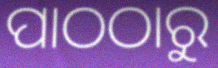
ପାଠଠାରୁ